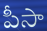
పీసా